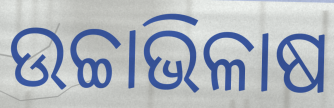
ଉଚ୍ଚାଭିଳାଷ